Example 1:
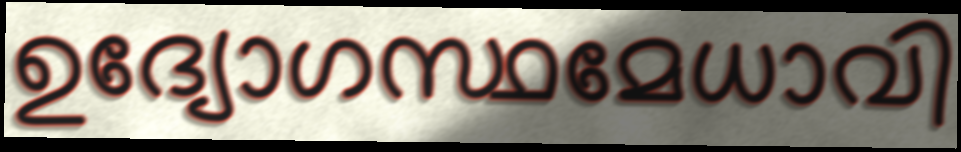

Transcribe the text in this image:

ഉദ്യോഗസ്ഥമേധാവി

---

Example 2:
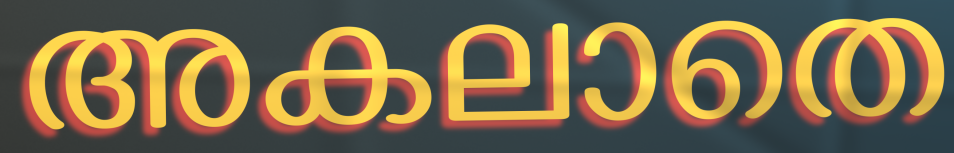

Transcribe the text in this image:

അകലാതെ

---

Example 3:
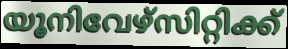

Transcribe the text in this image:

യൂനിവേഴ്സിറ്റിക്ക്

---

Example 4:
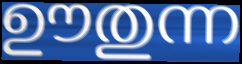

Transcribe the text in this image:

ഊതുന്ന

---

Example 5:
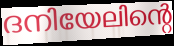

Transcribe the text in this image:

ദനിയേലിന്റെ